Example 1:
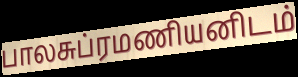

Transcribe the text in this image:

பாலசுப்ரமணியனிடம்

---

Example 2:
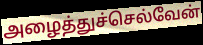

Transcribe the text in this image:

அழைத்துச்செல்வேன்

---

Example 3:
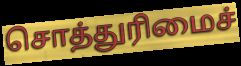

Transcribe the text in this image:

சொத்துரிமைச்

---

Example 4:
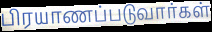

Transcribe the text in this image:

பிரயாணப்படுவார்கள்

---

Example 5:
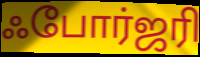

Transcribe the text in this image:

ஃபோர்ஜரி